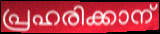
പ്രഹരിക്കാന്